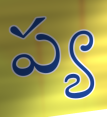
ప్య